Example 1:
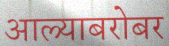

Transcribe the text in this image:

आल्याबरोबर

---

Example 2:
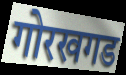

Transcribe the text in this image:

गोरखगड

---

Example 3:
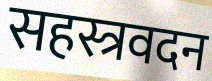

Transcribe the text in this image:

सहस्त्रवदन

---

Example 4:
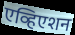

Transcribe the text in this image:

एव्हिएशन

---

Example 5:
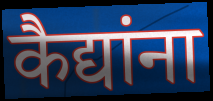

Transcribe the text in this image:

कैद्यांना